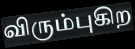
விரும்புகிற